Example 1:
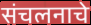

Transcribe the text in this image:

संचलनाचे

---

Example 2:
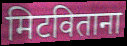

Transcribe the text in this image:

मिटविताना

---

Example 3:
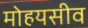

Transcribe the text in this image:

मोहयसीव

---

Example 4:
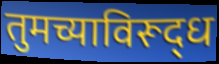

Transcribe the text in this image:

तुमच्याविरूद्ध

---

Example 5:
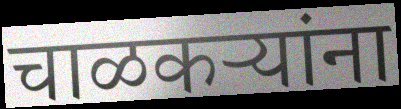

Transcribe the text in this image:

चाळकऱ्यांना